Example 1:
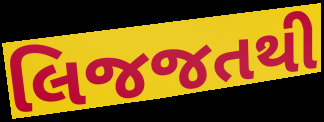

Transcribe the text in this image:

લિજજતથી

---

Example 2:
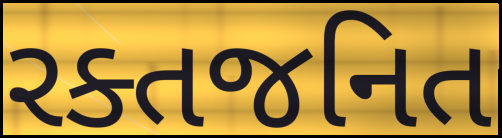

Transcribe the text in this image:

રક્તજનિત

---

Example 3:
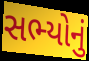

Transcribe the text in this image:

સભ્યોનું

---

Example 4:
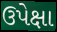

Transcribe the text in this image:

ઉપેક્ષા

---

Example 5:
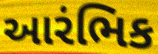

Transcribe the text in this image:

આરંભિક